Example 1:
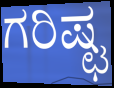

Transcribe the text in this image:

ಗರಿಷ್ಟ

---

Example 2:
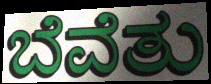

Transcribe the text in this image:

ಬೆವೆತು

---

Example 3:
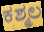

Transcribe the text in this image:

ಕಶ್ಮಲ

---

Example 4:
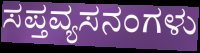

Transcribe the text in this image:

ಸಪ್ತವ್ಯಸನಂಗಳು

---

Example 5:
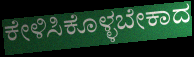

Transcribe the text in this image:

ಕೇಳಿಸಿಕೊಳ್ಳಬೇಕಾದ